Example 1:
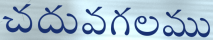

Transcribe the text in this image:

చదువగలము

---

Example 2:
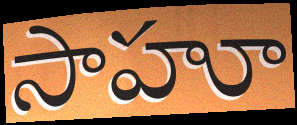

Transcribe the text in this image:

సాహూ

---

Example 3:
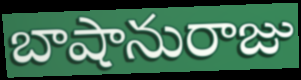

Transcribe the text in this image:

బాషానురాజు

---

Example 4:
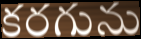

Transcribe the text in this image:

కరగును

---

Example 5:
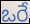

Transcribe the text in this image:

ఒరే